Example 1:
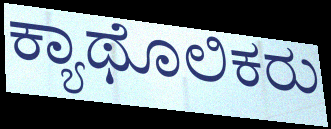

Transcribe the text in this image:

ಕ್ಯಾಥೊಲಿಕರು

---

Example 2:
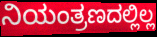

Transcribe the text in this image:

ನಿಯಂತ್ರಣದಲ್ಲಿಲ್ಲ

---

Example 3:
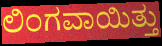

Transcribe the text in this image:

ಲಿಂಗವಾಯಿತ್ತು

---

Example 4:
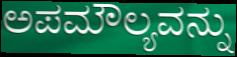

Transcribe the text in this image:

ಅಪಮೌಲ್ಯವನ್ನು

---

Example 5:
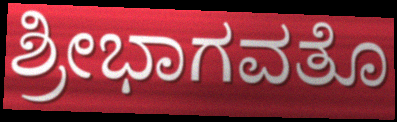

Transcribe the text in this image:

ಶ್ರೀಭಾಗವತೊ